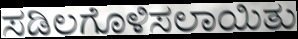
ಸಡಿಲಗೊಳಿಸಲಾಯಿತು